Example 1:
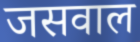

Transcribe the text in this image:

जसवाल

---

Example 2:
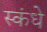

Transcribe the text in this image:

स्कंधे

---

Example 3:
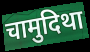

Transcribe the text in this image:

चामुदिथा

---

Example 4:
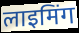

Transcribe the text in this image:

लाइमिंग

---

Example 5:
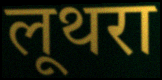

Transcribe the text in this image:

लूथरा